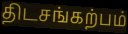
திடசங்கற்பம்